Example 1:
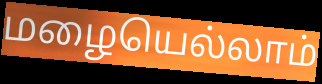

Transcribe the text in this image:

மழையெல்லாம்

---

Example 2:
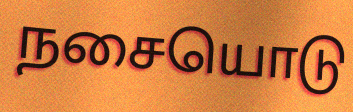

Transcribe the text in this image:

நசையொடு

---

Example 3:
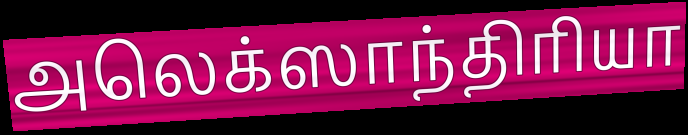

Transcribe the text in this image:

அலெக்ஸாந்திரியா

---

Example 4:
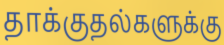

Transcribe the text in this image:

தாக்குதல்களுக்கு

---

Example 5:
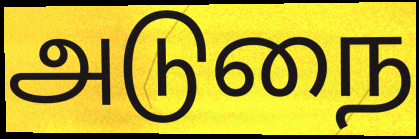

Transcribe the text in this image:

அடுநை